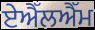
ਏਐੱਲਐੱਮ